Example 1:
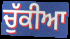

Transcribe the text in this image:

ਚੁੱਕੀਆ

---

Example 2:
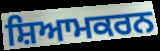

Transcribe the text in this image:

ਸ਼ਿਆਮਕਰਨ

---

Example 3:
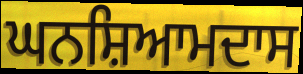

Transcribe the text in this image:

ਘਨਸ਼ਿਆਮਦਾਸ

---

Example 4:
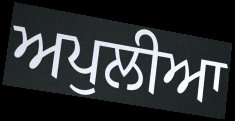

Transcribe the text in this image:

ਅਪੁਲੀਆ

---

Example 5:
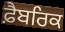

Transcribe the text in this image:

ਫ਼ੈਬਰਿਕ